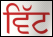
ਵਿੱਟ